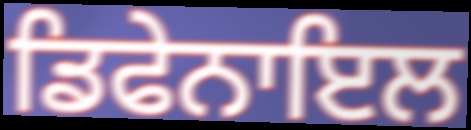
ਡਿਫੇਨਾਇਲ